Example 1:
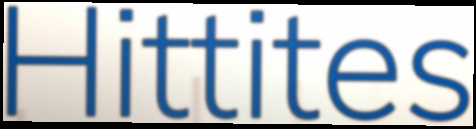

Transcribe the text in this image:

Hittites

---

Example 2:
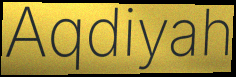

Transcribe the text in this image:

Aqdiyah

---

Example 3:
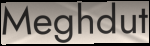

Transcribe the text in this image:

Meghdut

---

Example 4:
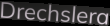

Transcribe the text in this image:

Drechslera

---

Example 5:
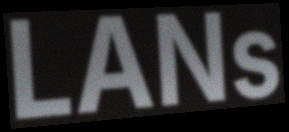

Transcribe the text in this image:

LANs